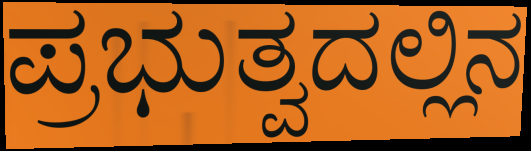
ಪ್ರಭುತ್ವದಲ್ಲಿನ